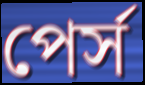
পের্স